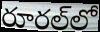
రూరల్‌లో